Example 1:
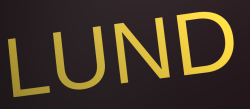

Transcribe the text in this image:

LUND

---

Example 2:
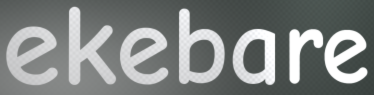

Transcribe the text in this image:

ekebare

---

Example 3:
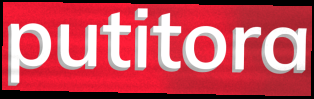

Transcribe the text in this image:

putitora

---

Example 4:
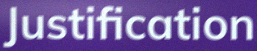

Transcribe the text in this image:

Justification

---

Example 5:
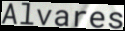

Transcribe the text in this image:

Alvares